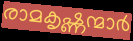
രാമകൃഷ്ണന്മാർ